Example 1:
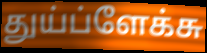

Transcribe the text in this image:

துய்ப்ளேக்சு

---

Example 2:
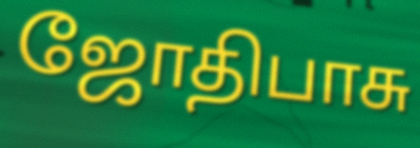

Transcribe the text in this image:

ஜோதிபாசு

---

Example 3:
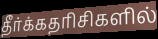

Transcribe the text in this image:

தீர்க்கதரிசிகளில்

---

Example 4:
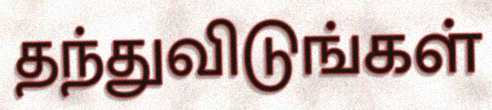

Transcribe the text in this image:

தந்துவிடுங்கள்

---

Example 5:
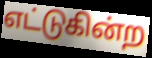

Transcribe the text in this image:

எட்டுகின்ற